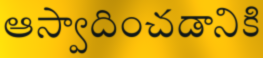
ఆస్వాదించడానికి